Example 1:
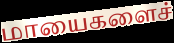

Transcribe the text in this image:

மாயைகளைச்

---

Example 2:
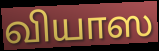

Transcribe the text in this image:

வியாஸ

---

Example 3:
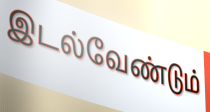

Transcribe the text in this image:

இடல்வேண்டும்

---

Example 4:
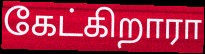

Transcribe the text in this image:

கேட்கிறாரா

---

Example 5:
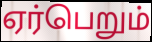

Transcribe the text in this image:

ஏர்பெறும்